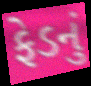
ફેડનું